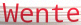
Wente